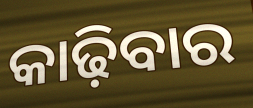
କାଢ଼ିବାର